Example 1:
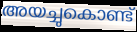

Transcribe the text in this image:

അയച്ചുകൊണ്ട്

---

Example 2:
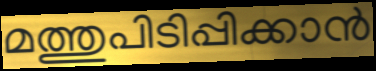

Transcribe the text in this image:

മത്തുപിടിപ്പിക്കാൻ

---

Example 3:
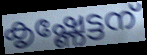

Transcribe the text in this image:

കൃഷ്ണേട്ടന്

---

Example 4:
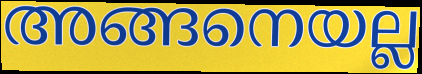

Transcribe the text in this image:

അങ്ങനെയല്ല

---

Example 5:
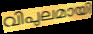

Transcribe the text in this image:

വിപുലമായി